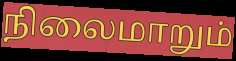
நிலைமாறும்